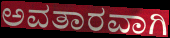
ಅವತಾರವಾಗಿ